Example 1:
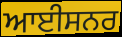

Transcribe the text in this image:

ਆਈਸਨਰ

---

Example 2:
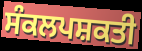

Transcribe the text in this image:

ਸੰਕਲਪਸ਼ਕਤੀ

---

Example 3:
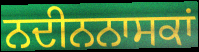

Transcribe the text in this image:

ਨਦੀਨਨਾਸਕਾਂ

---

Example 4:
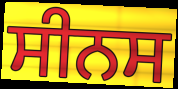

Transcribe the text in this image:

ਸੀਨਸ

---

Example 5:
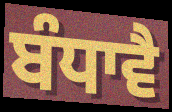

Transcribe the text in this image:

ਬੰਧਾਵੈ